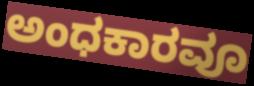
ಅಂಧಕಾರವೂ